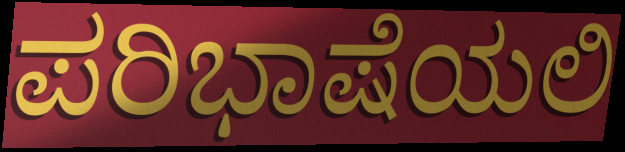
ಪರಿಭಾಷೆಯಲಿ